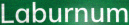
Laburnum